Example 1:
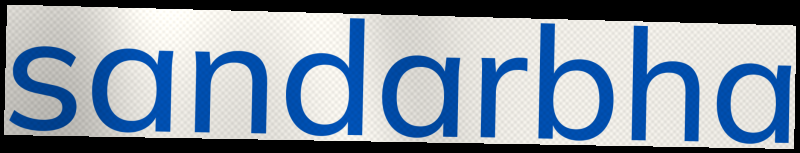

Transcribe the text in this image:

sandarbha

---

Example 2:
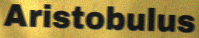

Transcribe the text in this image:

Aristobulus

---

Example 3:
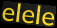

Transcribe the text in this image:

elele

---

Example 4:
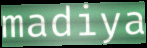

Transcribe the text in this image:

madiya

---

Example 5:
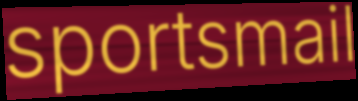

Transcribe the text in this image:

sportsmail